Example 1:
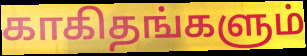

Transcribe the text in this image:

காகிதங்களும்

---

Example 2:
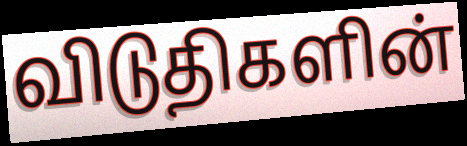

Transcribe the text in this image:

விடுதிகளின்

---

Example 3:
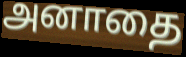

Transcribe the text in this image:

அனாதை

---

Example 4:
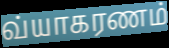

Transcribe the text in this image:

வ்யாகரணம்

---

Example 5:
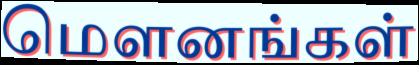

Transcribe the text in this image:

மௌனங்கள்